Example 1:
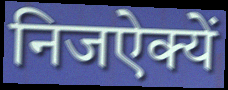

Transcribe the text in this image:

निजऐक्यें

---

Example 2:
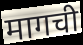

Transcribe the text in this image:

मागची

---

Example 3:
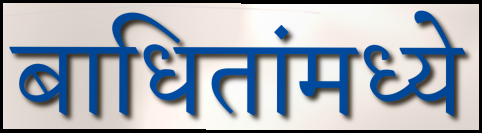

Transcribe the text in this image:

बाधितांमध्ये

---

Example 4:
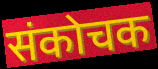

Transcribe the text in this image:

संकोचक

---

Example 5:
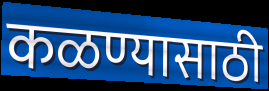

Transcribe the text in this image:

कळण्यासाठी